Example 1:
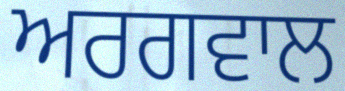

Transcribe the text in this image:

ਅਰਗਵਾਲ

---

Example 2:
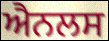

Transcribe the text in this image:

ਐਨਲਸ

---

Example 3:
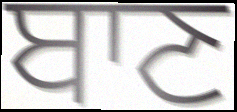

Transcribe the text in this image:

ਬਾਣ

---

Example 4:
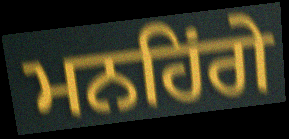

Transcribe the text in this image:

ਮਨਹਿਂਗੇ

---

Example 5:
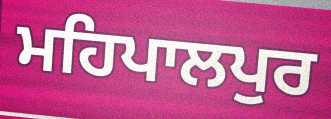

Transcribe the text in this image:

ਮਹਿਪਾਲਪੁਰ